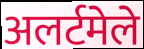
अलर्टमेले